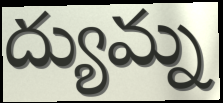
ద్యుమ్న